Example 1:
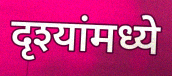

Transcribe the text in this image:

दृश्यांमध्ये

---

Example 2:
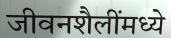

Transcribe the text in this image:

जीवनशैलींमध्ये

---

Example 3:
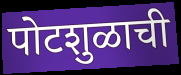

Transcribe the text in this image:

पोटशुळाची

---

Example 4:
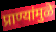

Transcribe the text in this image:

प्राण्यांमुळे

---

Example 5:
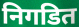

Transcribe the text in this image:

निगडित